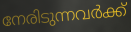
നേരിടുന്നവർക്ക്